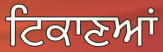
ਟਿਕਾਣਆਂ